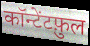
कॉन्टेंटफ़ुल